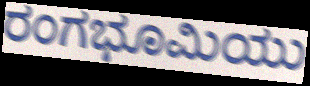
ರಂಗಭೂಮಿಯು